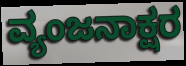
ವ್ಯಂಜನಾಕ್ಷರ